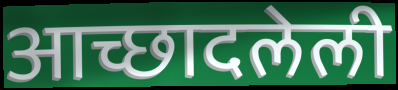
आच्छादलेली